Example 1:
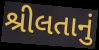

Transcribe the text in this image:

શ્રીલતાનું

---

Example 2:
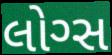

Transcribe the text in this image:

લોગ્સ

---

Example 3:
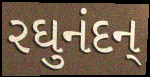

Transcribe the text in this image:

રઘુનંદન્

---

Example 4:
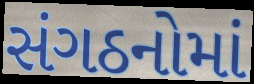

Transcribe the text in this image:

સંગઠનોમાં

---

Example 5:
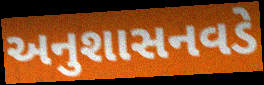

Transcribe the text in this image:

અનુશાસનવડે